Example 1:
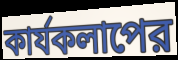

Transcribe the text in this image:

কার্যকলাপের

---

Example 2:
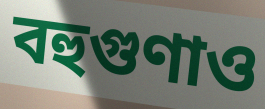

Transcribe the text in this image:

বহুগুণাও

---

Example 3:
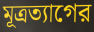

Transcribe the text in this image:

মূত্রত্যাগের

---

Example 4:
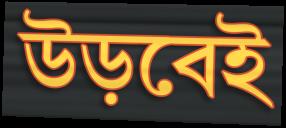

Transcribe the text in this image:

উড়বেই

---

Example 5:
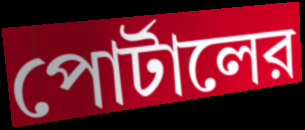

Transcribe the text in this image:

পোর্টালের